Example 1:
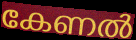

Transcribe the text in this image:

കേണൽ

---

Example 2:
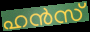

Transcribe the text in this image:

ഹൻസ്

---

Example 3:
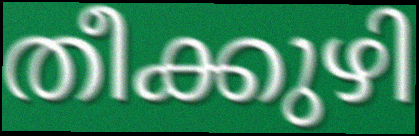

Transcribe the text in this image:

തീക്കുഴി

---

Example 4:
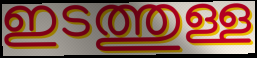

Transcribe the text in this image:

ഇടത്തുള്ള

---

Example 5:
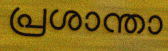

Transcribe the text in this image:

പ്രശാന്താ